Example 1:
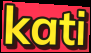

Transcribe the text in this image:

kati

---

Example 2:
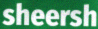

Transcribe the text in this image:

sheersh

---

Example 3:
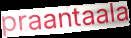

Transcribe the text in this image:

praantaala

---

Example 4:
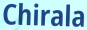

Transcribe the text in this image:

Chirala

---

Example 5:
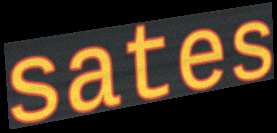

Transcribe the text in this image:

sates